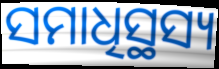
ସମାଧିସ୍ଥସ୍ୟ